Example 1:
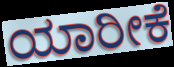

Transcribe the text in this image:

ಯಾರೀಕೆ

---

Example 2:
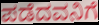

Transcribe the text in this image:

ಪಡೆದವನಿಗೆ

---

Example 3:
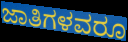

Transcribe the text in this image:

ಜಾತಿಗಳವರೂ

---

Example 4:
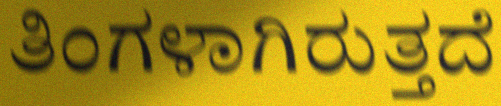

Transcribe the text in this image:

ತಿಂಗಳಾಗಿರುತ್ತದೆ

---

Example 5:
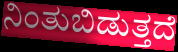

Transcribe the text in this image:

ನಿಂತುಬಿಡುತ್ತದೆ